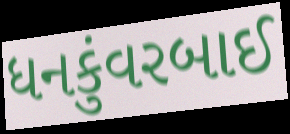
ધનકુંવરબાઈ